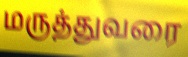
மருத்துவரை